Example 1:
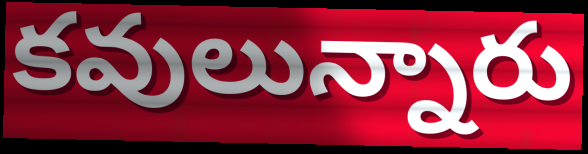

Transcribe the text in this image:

కవులున్నారు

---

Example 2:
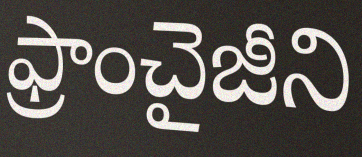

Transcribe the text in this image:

ఫ్రాంచైజీని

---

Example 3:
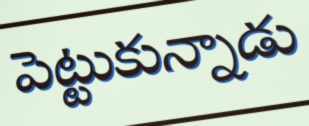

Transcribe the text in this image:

పెట్టుకున్నాడు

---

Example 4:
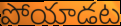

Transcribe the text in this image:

పోయాడట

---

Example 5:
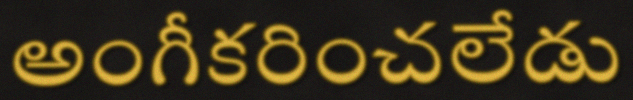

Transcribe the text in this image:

అంగీకరించలేడు